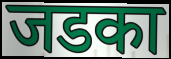
जडका